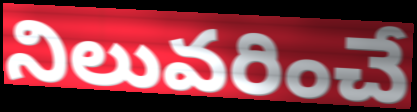
నిలువరించే